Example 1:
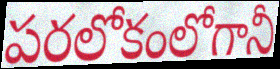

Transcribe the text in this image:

పరలోకంలోగానీ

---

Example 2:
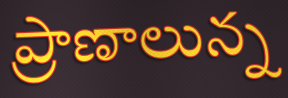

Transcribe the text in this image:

ప్రాణాలున్న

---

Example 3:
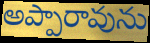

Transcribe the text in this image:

అప్పారావును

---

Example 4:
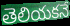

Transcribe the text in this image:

తెలియకనే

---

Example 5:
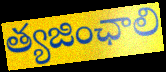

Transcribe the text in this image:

త్యజింఛాలి